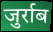
जुर्राब